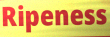
Ripeness